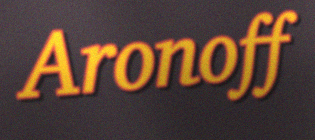
Aronoff